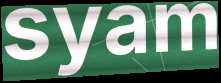
syam